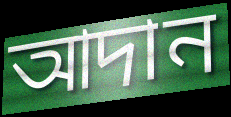
আদান